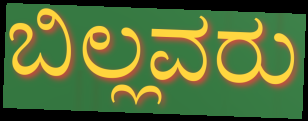
ಬಿಲ್ಲವರು